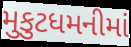
મુકુટધમનીમાં